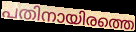
പതിനായിരത്തെ